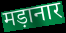
मड़ानार